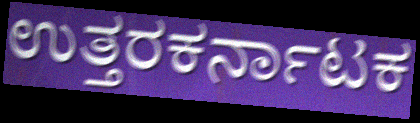
ಉತ್ತರಕರ್ನಾಟಕ